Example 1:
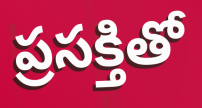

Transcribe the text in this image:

ప్రసక్తితో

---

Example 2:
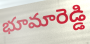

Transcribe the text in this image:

భూమారెడ్డి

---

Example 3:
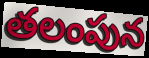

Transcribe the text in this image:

తలంపున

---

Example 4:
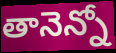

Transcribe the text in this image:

తానెన్నో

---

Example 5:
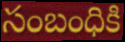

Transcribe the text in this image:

సంబంధికి